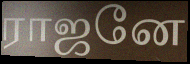
ராஜனே